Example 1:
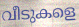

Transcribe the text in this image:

വീടുകളെ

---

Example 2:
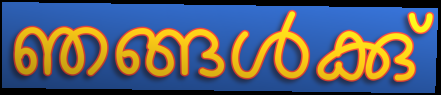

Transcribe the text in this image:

ഞങ്ങൾക്കു്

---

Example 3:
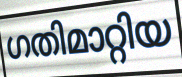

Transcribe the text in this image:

ഗതിമാറ്റിയ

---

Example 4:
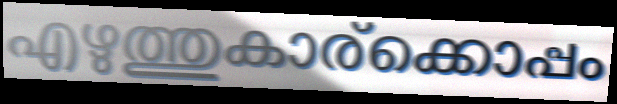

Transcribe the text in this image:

എഴുത്തുകാര്ക്കൊപ്പം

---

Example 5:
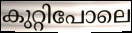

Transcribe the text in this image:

കുറ്റിപോലെ